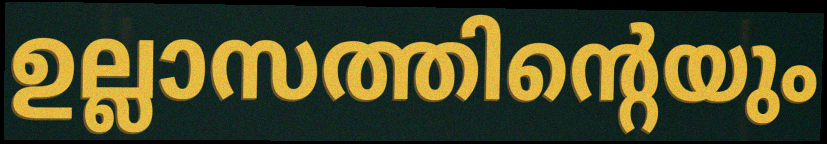
ഉല്ലാസത്തിന്റെയും